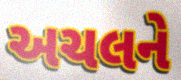
અચલને